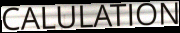
CALULATION